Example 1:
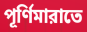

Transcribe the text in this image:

পূর্ণিমারাতে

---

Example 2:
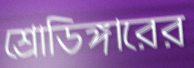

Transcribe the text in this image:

শ্রোডিঙ্গারের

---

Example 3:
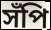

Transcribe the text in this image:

সঁপি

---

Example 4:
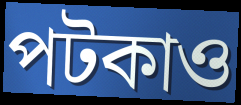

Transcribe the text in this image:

পটকাও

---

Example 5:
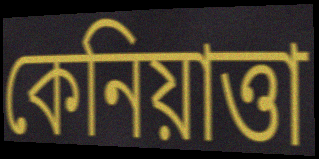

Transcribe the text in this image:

কেনিয়াত্তা